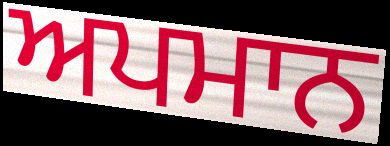
ਅਪਮਾਨ